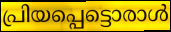
പ്രിയപ്പെട്ടൊരാൾ